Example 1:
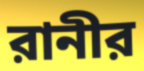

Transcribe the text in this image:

রানীর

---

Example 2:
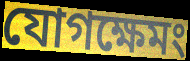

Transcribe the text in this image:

যোগক্ষেমং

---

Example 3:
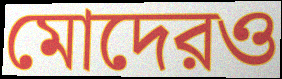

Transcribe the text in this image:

মোদেরও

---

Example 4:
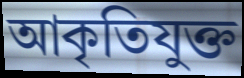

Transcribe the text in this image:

আকৃতিযুক্ত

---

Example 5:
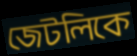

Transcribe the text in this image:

জেটলিকে